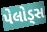
પેલોડ્સ